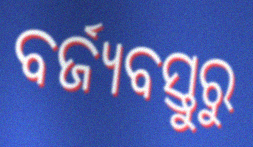
ବର୍ଜ୍ୟବସ୍ତୁରୁ